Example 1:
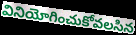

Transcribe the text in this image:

వినియోగించుకోవలసిన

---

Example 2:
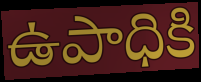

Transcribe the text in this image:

ఉపాధికి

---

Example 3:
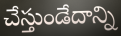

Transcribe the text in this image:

చేస్తుండేదాన్ని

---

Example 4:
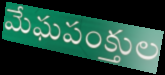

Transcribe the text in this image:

మేఘపంక్తుల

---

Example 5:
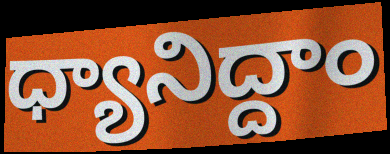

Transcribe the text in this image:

ధ్యానిద్దాం